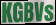
KGBVs